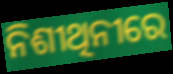
ନିଶୀଥିନୀରେ